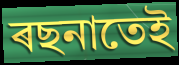
ৰছনাতেই